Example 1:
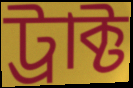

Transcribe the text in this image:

ট্রাক্ট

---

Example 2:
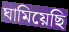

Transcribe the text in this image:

ঘামিয়েছি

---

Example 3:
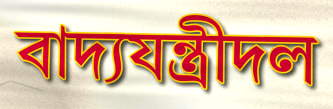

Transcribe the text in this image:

বাদ্যযন্ত্রীদল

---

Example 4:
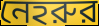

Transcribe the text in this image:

নেহরুর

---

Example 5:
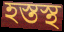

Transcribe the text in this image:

হস্তস্থ